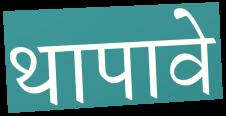
थापावे